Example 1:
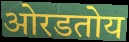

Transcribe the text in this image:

ओरडतोय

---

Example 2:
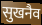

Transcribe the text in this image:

सुखनैव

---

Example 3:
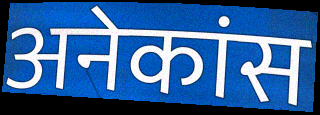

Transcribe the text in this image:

अनेकांस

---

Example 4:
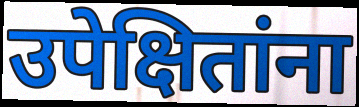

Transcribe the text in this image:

उपेक्षितांना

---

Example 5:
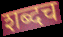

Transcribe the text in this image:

शब्दच